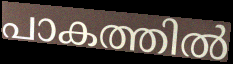
പാകത്തിൽ